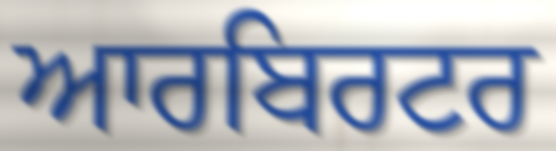
ਆਰਬਿਰਟਰ